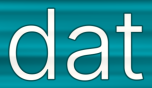
dat